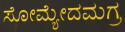
ಸೋಮ್ಯೇದಮಗ್ರ